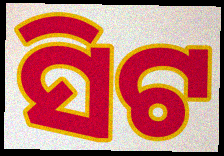
ସିଟ